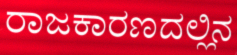
ರಾಜಕಾರಣದಲ್ಲಿನ